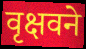
वृक्षवने